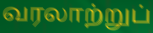
வரலாற்றுப்